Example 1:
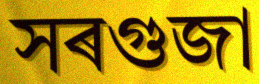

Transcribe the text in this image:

সৰগুজা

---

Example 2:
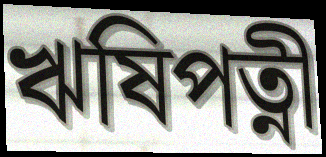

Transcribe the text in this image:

ঋষিপত্নী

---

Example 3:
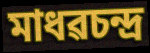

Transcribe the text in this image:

মাধৱচন্দ্ৰ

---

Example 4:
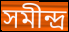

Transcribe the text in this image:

সমীন্দ্ৰ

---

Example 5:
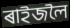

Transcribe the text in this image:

ৰাইজলৈ